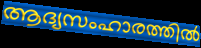
ആദ്യസംഹാരത്തിൽ